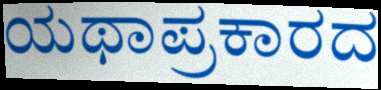
ಯಥಾಪ್ರಕಾರದ